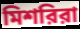
মিশরিরা